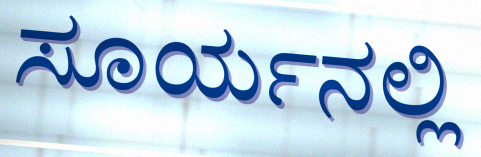
ಸೂರ್ಯನಲ್ಲಿ